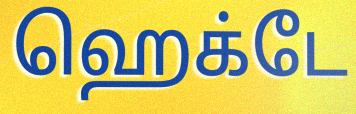
ஹெக்டே